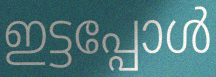
ഇട്ടപ്പോൾ